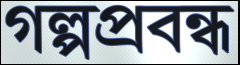
গল্পপ্রবন্ধ